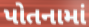
પોતનામાં